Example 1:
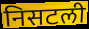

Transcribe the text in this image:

निसटली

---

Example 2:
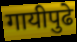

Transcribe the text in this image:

गायीपुढे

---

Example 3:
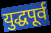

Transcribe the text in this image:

युद्धपूर्व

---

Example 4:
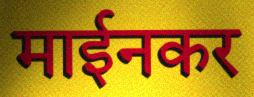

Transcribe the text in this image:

माईनकर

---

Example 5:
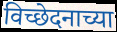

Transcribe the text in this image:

विच्छेदनाच्या